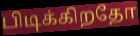
பிடிக்கிறதோ